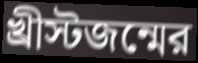
খ্রীস্টজন্মের